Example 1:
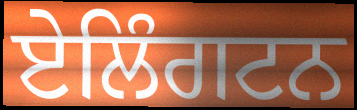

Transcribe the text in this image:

ਏਲਿੰਗਟਨ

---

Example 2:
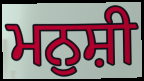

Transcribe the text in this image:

ਮਨੁਸ਼ੀ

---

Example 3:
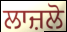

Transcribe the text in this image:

ਲਾਜ਼ਲੋ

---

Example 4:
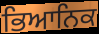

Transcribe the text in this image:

ਭਿਆਨਿਕ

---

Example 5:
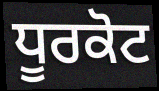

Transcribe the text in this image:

ਧੂਰਕੋਟ